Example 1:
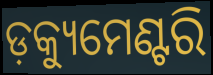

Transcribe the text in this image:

ଡ଼କ୍ୟୁମେଣ୍ଟରି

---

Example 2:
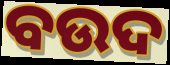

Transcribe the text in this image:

ବଉଦ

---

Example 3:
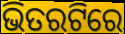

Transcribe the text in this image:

ଭିତରଟିରେ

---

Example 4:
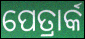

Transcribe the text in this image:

ପେତ୍ରାର୍କ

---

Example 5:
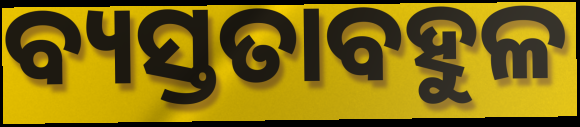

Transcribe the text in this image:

ବ୍ୟସ୍ତତାବହୁଳ